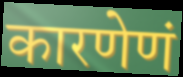
कारणेणं